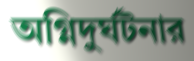
অগ্নিদুর্ঘটনার